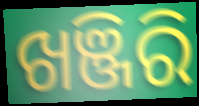
ଖଞ୍ଜିରି